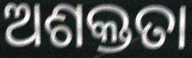
ଅଶକ୍ତତା